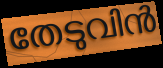
തേടുവിൻ